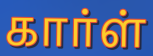
கார்ள்